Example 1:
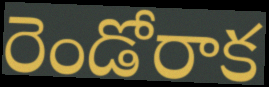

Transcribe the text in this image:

రెండోరాక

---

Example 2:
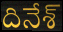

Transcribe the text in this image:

దినేశ్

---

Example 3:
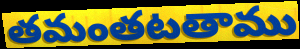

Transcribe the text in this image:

తమంతటతాము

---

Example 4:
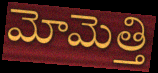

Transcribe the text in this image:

మోమెత్తి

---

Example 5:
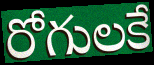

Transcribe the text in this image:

రోగులకే